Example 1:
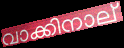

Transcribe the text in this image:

വാക്കിനാല്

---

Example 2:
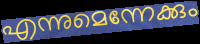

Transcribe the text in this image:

എന്നുമെന്നേക്കും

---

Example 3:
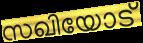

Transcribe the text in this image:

സഖിയോട്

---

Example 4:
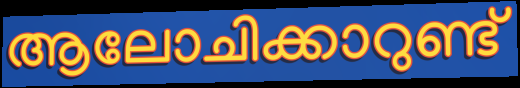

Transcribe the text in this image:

ആലോചിക്കാറുണ്ട്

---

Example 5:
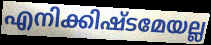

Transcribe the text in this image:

എനിക്കിഷ്ടമേയല്ല